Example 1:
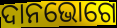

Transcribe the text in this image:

ଦାନଭୋଗେ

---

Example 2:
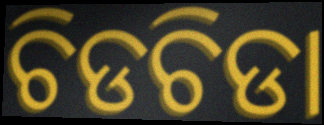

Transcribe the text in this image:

ଚିଡଚିଡା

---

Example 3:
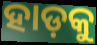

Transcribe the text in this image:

ହାଡ଼କୁ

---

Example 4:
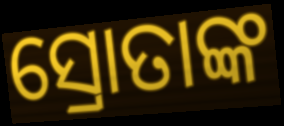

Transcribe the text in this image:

ସ୍ରୋତାଙ୍କ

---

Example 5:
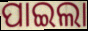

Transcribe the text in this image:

ପାଇଲା